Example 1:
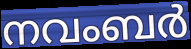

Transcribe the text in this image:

നവംബർ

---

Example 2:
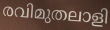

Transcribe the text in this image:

രവിമുതലാളി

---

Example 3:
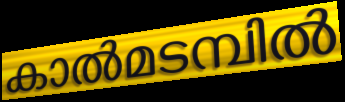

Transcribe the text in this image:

കാൽമടമ്പിൽ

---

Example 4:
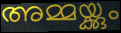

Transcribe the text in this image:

അമ്മയ്ക്കും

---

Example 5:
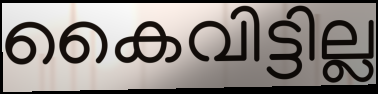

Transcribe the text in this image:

കൈവിട്ടില്ല